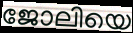
ജോലിയെ